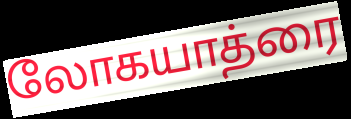
லோகயாத்ரை